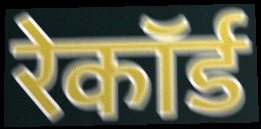
रेकॉर्ड